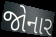
જોનાર